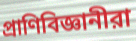
প্রাণিবিজ্ঞানীরা